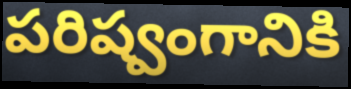
పరిష్వంగానికి